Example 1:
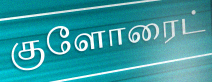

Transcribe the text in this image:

குளோரைட்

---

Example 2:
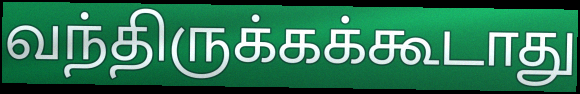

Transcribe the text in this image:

வந்திருக்கக்கூடாது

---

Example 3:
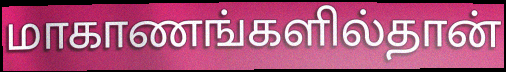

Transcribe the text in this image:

மாகாணங்களில்தான்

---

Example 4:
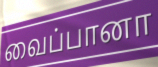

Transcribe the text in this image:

வைப்பானா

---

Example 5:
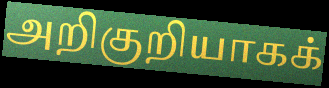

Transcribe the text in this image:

அறிகுறியாகக்